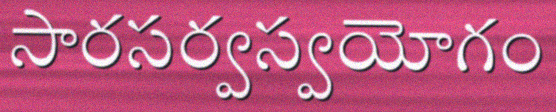
సారసర్వస్వయోగం